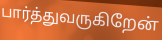
பார்த்துவருகிறேன்